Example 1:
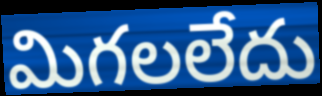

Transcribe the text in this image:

మిగలలేదు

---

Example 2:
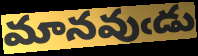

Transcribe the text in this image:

మానవుఁడు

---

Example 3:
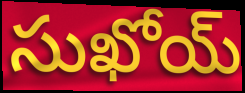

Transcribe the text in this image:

సుఖోయ్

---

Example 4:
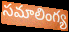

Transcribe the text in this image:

సమాలింగ్య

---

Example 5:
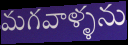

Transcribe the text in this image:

మగవాళ్ళను